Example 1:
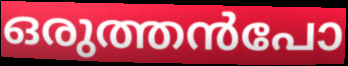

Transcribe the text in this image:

ഒരുത്തൻപോ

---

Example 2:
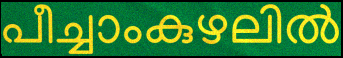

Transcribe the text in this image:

പീച്ചാംകുഴലിൽ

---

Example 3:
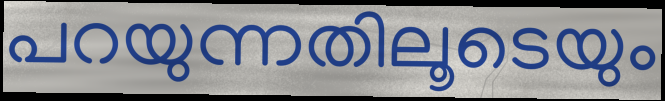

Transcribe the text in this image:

പറയുന്നതിലൂടെയും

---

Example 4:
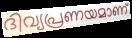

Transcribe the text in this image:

ദിവ്യപ്രണയമാണ്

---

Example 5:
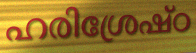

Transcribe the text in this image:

ഹരിശ്രേഷ്ഠ